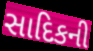
સાદિકની